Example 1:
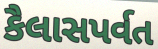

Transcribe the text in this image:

કૈલાસપર્વત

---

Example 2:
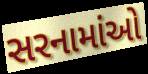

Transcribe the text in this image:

સરનામાંઓ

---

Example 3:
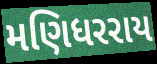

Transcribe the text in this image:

મણિધરરાય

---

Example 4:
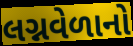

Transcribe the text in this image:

લગ્નવેળાનો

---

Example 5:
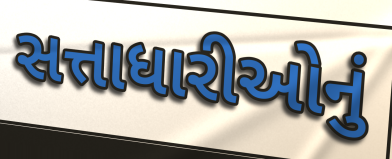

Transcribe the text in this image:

સત્તાધારીઓનું